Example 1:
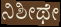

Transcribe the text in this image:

ನಿಶೀಥೇ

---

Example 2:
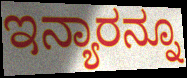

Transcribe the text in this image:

ಇನ್ಯಾರನ್ನೂ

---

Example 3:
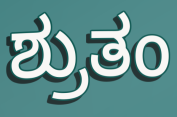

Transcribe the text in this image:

ಶ್ರುತಂ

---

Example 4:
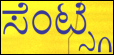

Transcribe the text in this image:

ಸೆಂಟ್ಸ್ಗೆ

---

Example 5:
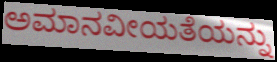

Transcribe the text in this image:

ಅಮಾನವೀಯತೆಯನ್ನು